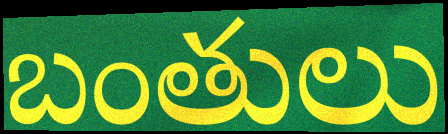
బంతులు